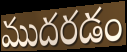
ముదరడం